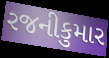
રજનીકુમાર